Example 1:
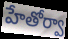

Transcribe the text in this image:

హేతోర్వా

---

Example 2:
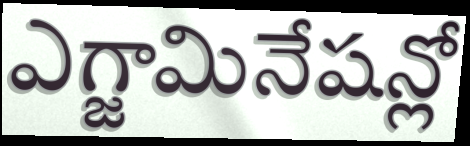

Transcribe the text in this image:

ఎగ్జామినేషన్లో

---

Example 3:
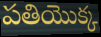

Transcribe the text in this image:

పతియొక్క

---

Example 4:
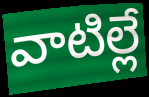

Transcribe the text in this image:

వాటిల్లే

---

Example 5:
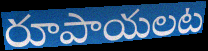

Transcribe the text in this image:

రూపాయలట